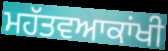
ਮਹੱਤਵਆਕਾਂਖੀ